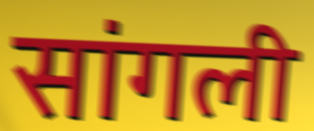
सांगली